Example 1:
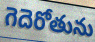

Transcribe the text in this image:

గెదెరోతును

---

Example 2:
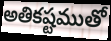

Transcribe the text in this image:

అతికష్టముతో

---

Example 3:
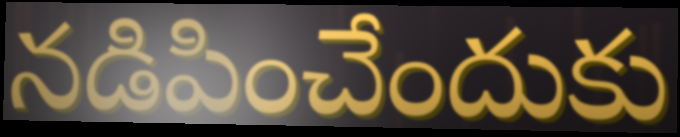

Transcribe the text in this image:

నడిపించేందుకు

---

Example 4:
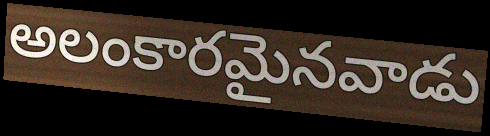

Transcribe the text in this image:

అలంకారమైనవాడు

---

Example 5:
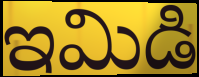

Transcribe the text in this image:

ఇమిడి